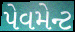
પેવમેન્ટ